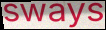
sways